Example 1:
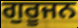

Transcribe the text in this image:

ਗੁਰੂਜਨ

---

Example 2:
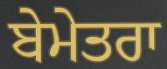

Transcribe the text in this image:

ਬੇਮੇਤਰਾ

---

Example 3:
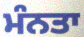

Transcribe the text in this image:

ਮੰਨਤਾ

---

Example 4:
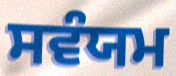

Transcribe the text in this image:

ਸਵੰਯਮ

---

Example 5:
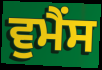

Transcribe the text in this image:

ਵੁਮੈਂਸ